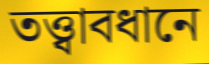
তত্ত্বাবধানে